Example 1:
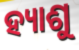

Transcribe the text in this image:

ହ୍ୟାଶୁ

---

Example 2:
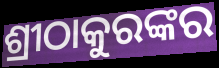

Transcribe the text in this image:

ଶ୍ରୀଠାକୁରଙ୍କର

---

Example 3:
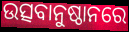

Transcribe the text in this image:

ଉତ୍ସବାନୁଷ୍ଠାନରେ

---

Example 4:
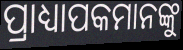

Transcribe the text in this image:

ପ୍ରାଧ୍ୟାପକମାନଙ୍କୁ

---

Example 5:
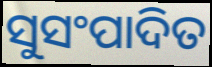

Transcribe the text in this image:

ସୁସଂପାଦିତ